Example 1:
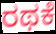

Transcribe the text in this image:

ರಥಕೆ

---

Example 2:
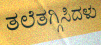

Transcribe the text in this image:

ತಲೆತಗ್ಗಿಸಿದಳು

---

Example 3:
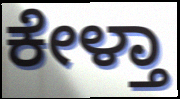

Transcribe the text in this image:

ಕೇಳ್ತಾ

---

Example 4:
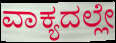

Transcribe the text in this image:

ವಾಕ್ಯದಲ್ಲೇ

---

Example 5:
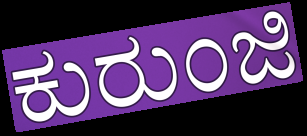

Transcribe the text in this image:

ಕುರುಂಜಿ